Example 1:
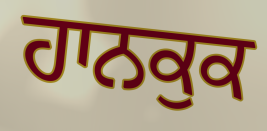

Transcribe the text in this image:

ਹਾਨਕੁਕ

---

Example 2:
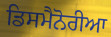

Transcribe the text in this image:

ਡਿਸਮੈਨੋਰੀਆ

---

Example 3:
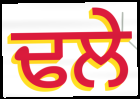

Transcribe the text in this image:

ਢਲੇ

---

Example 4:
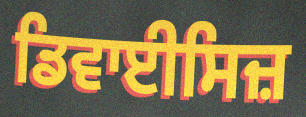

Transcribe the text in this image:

ਡਿਵਾਈਸਿਜ਼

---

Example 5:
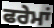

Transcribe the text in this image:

ਫਰੇਮਾਂ